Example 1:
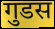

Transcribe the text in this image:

गुडस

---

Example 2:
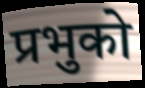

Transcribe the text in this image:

प्रभुको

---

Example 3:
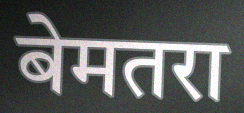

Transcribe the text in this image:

बेमतरा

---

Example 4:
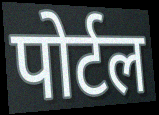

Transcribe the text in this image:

पोर्टल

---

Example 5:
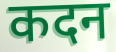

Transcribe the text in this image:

कदन